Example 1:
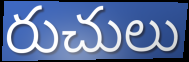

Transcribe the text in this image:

రుచులు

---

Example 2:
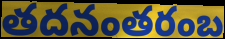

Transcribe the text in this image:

తదనంతరంబ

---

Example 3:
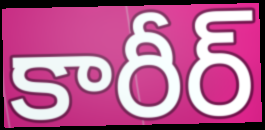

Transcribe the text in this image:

కారీర్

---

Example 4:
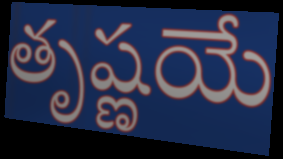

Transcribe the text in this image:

తృష్ణయే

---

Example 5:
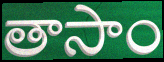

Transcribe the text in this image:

తాసాం